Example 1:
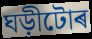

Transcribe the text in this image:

ঘড়ীটোৰ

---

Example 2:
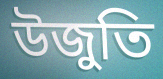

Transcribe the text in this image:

উজুতি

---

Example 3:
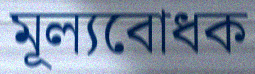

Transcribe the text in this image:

মূল্যবোধক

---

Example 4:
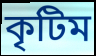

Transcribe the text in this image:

কৃটিম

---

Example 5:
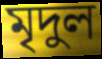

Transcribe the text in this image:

মৃদুল